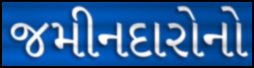
જમીનદારોનો